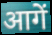
आगें